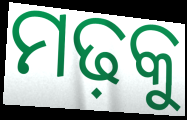
ମଢ଼କୁ